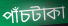
পাঁচটাকা